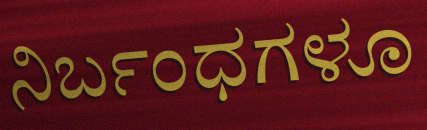
ನಿರ್ಬಂಧಗಳೂ